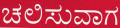
ಚಲಿಸುವಾಗ